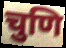
चुणि